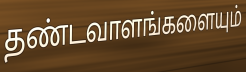
தண்டவாளங்களையும்